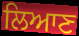
ਲਿਆਣ